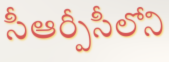
సీఆర్పీసీలోని